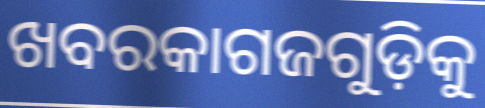
ଖବରକାଗଜଗୁଡ଼ିକୁ